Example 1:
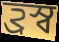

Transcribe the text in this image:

হ্ৰস্ব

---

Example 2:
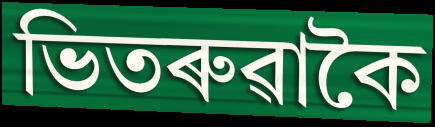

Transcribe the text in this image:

ভিতৰুৱাকৈ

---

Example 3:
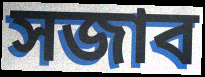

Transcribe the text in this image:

সজাব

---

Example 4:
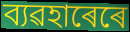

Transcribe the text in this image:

ব্যৱহাৰেৰে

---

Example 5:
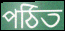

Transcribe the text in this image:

পঠিত